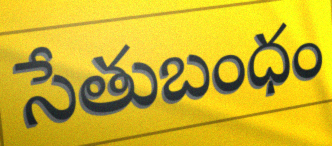
సేతుబంధం